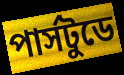
পার্সটুডে